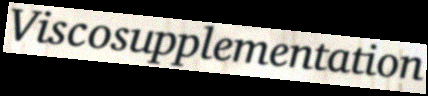
Viscosupplementation